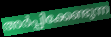
അർപ്പിക്കേണ്ടുന്ന